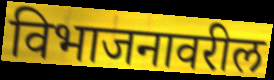
विभाजनावरील